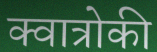
क्वात्रोकी